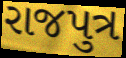
રાજપુત્ર